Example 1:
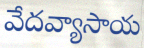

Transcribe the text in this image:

వేదవ్యాసాయ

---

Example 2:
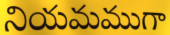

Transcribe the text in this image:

నియమముగా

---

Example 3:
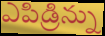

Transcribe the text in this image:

ఎపిడ్రిన్ను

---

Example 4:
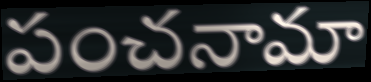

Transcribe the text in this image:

పంచనామా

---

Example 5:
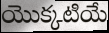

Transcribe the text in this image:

యొక్కటియే